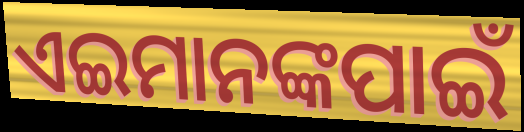
ଏଇମାନଙ୍କପାଇଁ